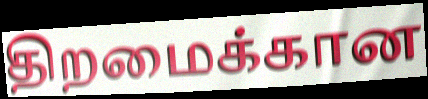
திறமைக்கான